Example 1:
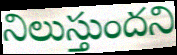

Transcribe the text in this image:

నిలుస్తుందని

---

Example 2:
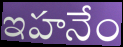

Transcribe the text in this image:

ఇహనేం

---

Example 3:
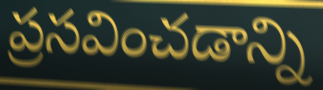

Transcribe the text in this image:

ప్రసవించడాన్ని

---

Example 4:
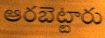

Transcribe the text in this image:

ఆరబెట్టారు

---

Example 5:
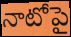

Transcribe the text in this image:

నాటోపై